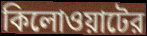
কিলোওয়াটের